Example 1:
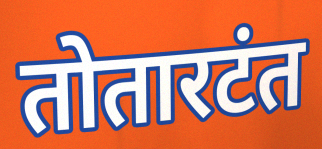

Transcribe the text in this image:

तोतारटंत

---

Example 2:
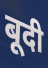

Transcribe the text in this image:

बूदी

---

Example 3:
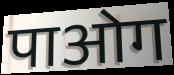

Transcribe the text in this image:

पाओग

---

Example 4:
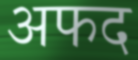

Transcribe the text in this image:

अफद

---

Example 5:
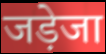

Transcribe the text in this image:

जड़ेजा